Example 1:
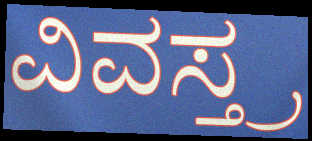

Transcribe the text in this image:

ವಿವಸ್ತ್ರ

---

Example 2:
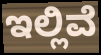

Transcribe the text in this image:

ಇಲ್ಲಿವೆ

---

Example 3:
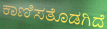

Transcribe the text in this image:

ಕಾಣಿಸತೊಡಗಿದೆ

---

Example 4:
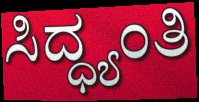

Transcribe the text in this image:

ಸಿದ್ಧ್ಯಂತಿ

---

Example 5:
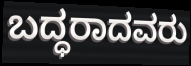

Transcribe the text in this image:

ಬದ್ಧರಾದವರು